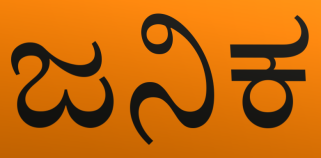
ಜನಿಕ